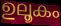
ഉലൂകം